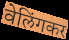
वेलिंगकर